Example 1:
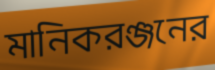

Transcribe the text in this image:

মানিকরঞ্জনের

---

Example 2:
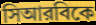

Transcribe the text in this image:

সিআরবিকে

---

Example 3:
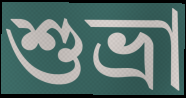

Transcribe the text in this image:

শুভ্রা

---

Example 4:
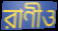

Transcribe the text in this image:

রাণীও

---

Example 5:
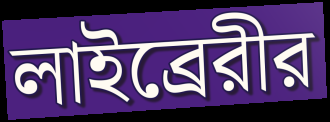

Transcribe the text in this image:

লাইব্রেরীর